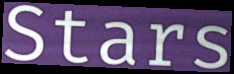
Stars